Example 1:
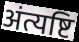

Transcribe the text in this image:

अंत्यष्टि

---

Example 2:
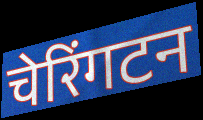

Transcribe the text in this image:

चेरिंगटन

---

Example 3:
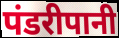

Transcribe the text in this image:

पंडरीपानी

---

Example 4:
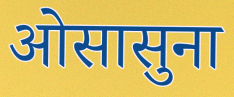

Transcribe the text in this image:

ओसासुना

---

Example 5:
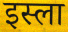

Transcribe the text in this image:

इस्ला